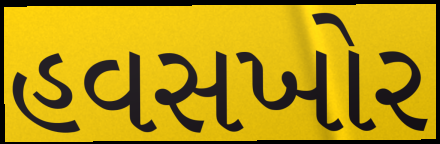
હવસખોર